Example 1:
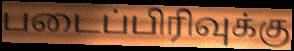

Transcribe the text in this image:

படைப்பிரிவுக்கு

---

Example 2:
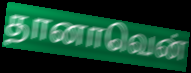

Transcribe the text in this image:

தானாவென்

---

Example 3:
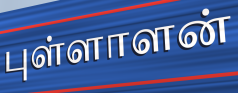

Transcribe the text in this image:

புள்ளாளன்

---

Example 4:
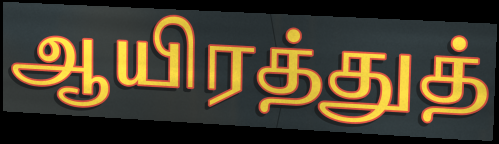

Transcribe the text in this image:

ஆயிரத்துத்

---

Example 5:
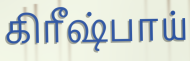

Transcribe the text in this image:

கிரீஷ்பாய்